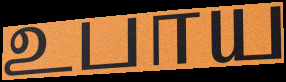
உபாய